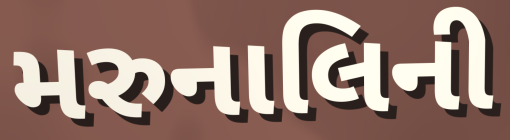
મરુનાલિની